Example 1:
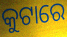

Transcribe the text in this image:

କୁଟାରେ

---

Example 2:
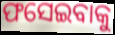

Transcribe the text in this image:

ଫସେଇବାକୁ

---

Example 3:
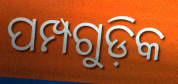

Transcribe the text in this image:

ପମ୍ପଗୁଡ଼ିକ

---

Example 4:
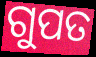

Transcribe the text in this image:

ଗୁପତ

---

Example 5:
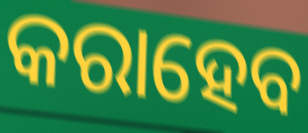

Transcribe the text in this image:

କରାହେବ